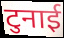
टुनाई